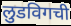
लुडविगची